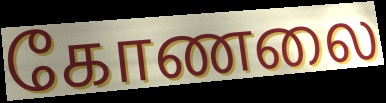
கோணலை